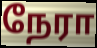
நேரா